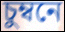
চুম্বনে